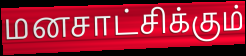
மனசாட்சிக்கும்